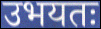
उभयतः